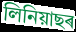
লিনিয়াছৰ